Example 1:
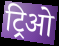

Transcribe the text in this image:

ट्रिओ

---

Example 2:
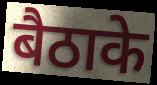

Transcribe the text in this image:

बैठाके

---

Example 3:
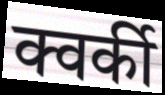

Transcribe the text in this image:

क्वर्की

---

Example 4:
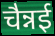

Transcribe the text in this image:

चैन्नई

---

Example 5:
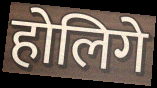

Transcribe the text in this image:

होलिगे